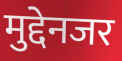
मुद्देनजर